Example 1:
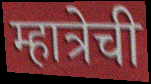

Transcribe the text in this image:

म्हात्रेची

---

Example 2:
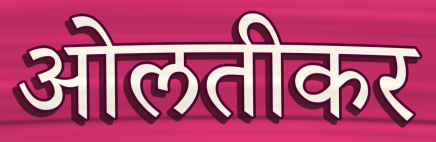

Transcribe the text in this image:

ओलतीकर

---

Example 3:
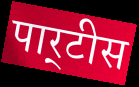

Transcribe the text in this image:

पार्टीस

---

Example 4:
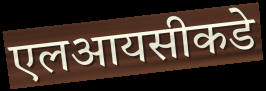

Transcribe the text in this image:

एलआयसीकडे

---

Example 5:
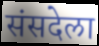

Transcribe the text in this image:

संसदेला